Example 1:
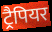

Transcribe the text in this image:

ट्रैपियर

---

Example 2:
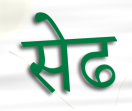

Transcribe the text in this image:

सेढ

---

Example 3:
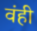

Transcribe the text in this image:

वंही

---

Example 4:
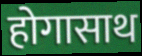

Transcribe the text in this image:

होगासाथ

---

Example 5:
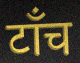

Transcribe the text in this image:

टाँच